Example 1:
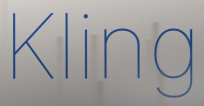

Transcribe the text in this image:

Kling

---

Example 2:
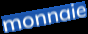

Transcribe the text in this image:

monnaie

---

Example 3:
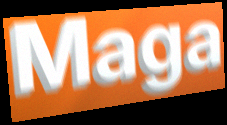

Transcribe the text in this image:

Maga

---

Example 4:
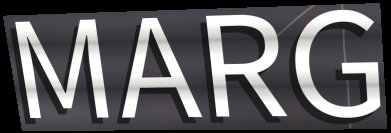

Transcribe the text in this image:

MARG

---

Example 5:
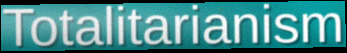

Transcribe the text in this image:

Totalitarianism